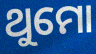
ଥୁମୋ